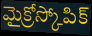
మైక్రోస్కోపిక్